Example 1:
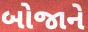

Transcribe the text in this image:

બોજાને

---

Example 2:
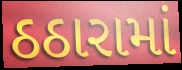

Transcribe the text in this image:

ઠઠારામાં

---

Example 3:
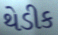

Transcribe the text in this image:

થેડીક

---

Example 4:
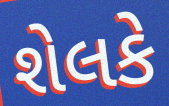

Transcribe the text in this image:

શેલકે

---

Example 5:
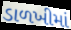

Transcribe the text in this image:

ડાળખીમાં